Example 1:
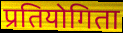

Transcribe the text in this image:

प्रतियोगिता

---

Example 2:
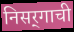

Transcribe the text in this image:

निसर्गाची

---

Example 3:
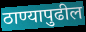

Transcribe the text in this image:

ठाण्यापुढील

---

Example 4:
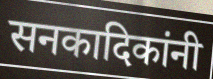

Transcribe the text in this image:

सनकादिकांनी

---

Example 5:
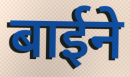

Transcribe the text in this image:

बाईने